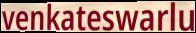
venkateswarlu